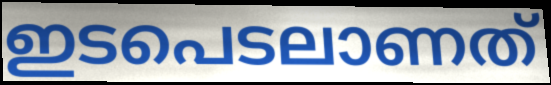
ഇടപെടലാണത്